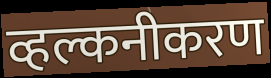
व्हल्कनीकरण